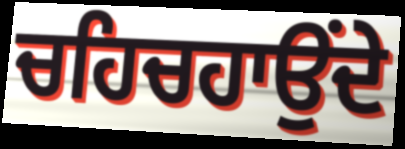
ਚਹਿਚਹਾਉਂਦੇ